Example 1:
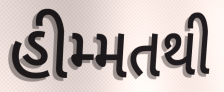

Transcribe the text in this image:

હીમ્મતથી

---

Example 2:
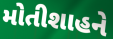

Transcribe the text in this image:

મોતીશાહને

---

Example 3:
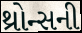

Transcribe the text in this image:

થ્રોન્સની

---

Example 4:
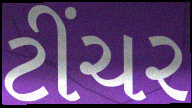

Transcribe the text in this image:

ટીંચર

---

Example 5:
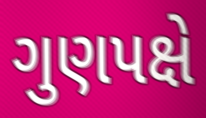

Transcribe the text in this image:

ગુણપક્ષે